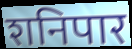
शनिपार